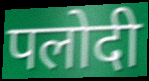
पलोदी